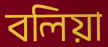
বলিয়া